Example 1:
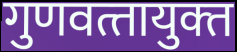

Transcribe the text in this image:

गुणवत्‍तायुक्‍त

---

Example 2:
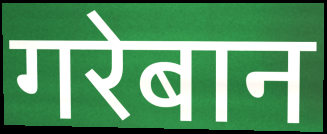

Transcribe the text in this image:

गरेबान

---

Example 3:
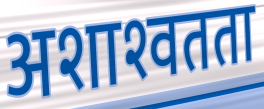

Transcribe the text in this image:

अशाश्वतता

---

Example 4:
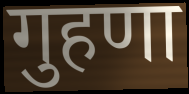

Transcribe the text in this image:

गुहणा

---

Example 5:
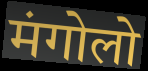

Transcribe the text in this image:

मंगोलो